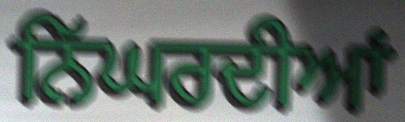
ਨਿੱਘਰਦੀਆਂ